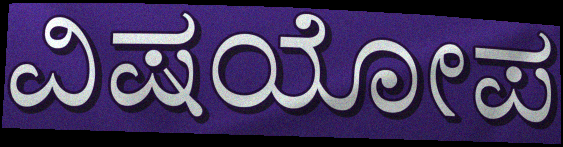
ವಿಷಯೋಪ